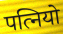
पत्नियो